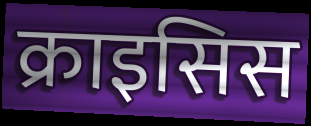
क्राइसिस